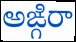
అఙ్గిరా